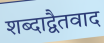
शब्दाद्वैतवाद